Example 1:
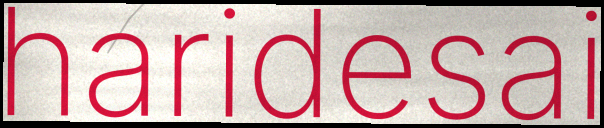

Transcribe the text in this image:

haridesai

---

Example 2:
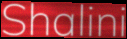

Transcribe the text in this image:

Shalini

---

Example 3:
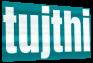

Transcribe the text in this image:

tujthi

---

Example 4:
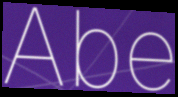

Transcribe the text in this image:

Abe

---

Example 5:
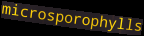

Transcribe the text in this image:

microsporophylls